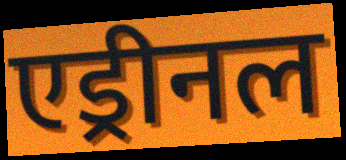
एड्रीनल